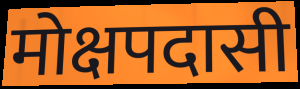
मोक्षपदासी